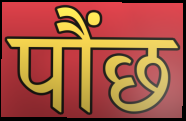
पौंछ